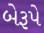
બેરૂપે